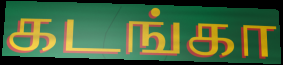
கடங்கா